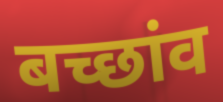
बच्छांव